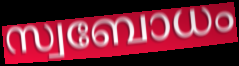
സ്വബോധം